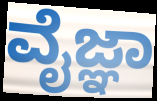
ವೈಜ್ಞಾ